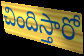
చిందిస్తారో